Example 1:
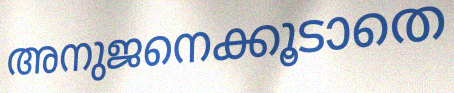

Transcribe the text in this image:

അനുജനെക്കൂടാതെ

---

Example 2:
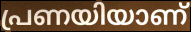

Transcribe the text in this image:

പ്രണയിയാണ്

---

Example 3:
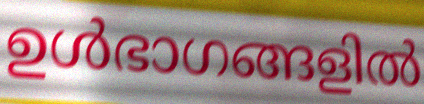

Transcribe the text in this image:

ഉൾഭാഗങ്ങളിൽ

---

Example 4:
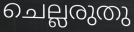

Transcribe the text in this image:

ചെല്ലരുതു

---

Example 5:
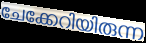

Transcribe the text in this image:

ചേക്കേറിയിരുന്ന